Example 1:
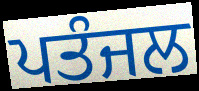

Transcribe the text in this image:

ਪਤੰਜਲ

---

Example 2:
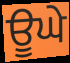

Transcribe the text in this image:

ਊਘੇ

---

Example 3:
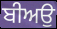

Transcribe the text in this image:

ਬੀਅਉ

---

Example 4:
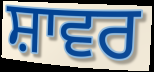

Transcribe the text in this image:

ਸ਼ਾਵਰ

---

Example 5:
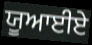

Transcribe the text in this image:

ਯੂਆਈਏ